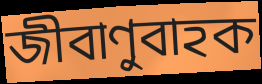
জীবাণুবাহক